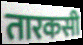
तारकसी